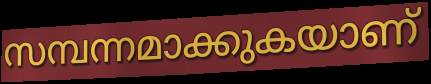
സമ്പന്നമാക്കുകയാണ്